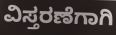
ವಿಸ್ತರಣೆಗಾಗಿ